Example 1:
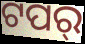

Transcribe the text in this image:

ଟପର୍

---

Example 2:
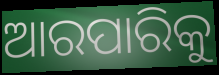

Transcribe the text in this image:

ଆରପାରିକୁ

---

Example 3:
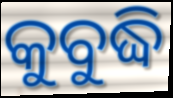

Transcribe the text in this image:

କୁବୁଦ୍ଧି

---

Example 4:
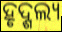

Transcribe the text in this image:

ହୃଦ୍ଶଲ୍ୟ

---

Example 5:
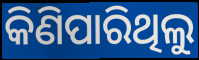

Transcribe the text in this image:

କିଣିପାରିଥିଲୁ